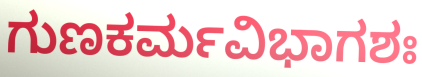
ಗುಣಕರ್ಮವಿಭಾಗಶಃ